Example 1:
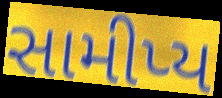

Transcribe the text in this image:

સામીપ્ય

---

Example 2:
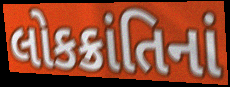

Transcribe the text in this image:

લોકક્રાંતિનાં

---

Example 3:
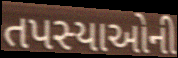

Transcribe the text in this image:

તપસ્યાઓની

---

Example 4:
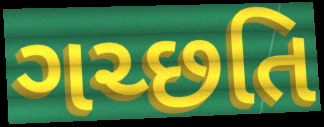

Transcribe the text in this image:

ગચ્છતિ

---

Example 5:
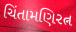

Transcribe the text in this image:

ચિંતામણિરત્ન